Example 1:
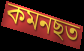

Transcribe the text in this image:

কমনছত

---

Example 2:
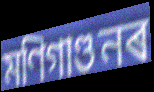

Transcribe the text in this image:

মণিগাণ্ডনৰ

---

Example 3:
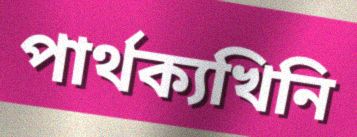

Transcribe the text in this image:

পাৰ্থক্যখিনি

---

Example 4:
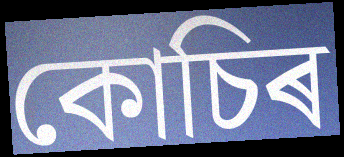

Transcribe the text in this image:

কোচিৰ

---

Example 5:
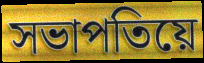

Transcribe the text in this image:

সভাপতিয়ে